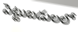
పెట్టుబడులలో